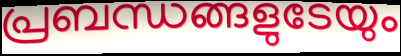
പ്രബന്ധങ്ങളുടേയും